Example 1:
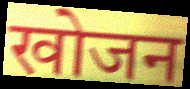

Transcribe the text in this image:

खोजन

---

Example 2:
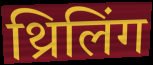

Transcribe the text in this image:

थ्रिलिंग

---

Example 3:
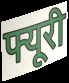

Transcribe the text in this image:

फ्यूरी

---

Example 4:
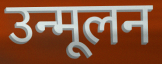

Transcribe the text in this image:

उन्‍मूलन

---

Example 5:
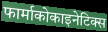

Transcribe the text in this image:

फार्माकोकाइनेटिक्स